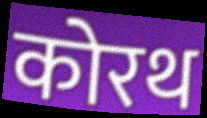
कोरथ